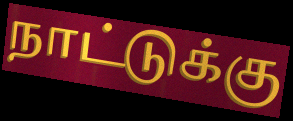
நாட்டுக்கு